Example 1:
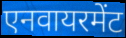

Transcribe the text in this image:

एनवायरमेंट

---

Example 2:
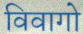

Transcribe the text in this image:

विवागो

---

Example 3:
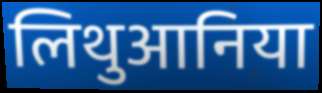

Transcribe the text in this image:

लिथुआनिया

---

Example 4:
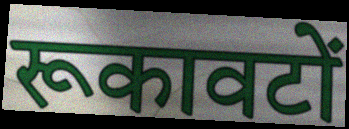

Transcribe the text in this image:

रूकावटों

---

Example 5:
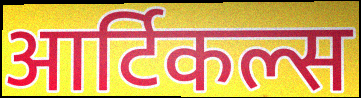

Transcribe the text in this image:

आर्टिकल्स